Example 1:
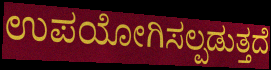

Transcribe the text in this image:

ಉಪಯೋಗಿಸಲ್ಪಡುತ್ತದೆ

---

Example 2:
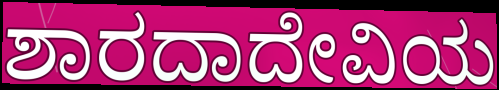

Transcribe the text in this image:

ಶಾರದಾದೇವಿಯ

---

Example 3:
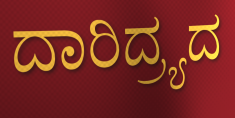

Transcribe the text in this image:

ದಾರಿದ್ರ್ಯದ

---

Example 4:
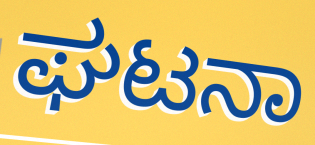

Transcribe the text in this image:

ಘಟನಾ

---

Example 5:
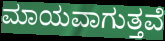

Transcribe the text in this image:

ಮಾಯವಾಗುತ್ತವೆ